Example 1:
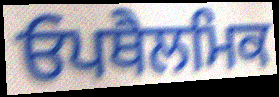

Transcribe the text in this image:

ਓਪਥੈਲਮਿਕ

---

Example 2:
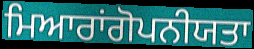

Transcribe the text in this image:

ਮਿਆਰਾਂਗੋਪਨੀਯਤਾ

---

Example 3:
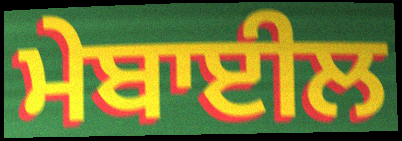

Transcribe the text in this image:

ਮੇਬਾਈਲ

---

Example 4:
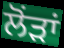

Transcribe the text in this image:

ਲੋਂੜਾਂ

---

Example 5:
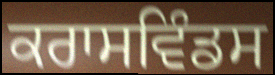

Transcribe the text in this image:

ਕਰਾਸਵਿੰਡਸ